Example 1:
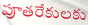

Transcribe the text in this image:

పూతరేకులకు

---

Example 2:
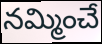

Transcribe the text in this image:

నమ్మించే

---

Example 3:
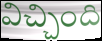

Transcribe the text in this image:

విచ్చింది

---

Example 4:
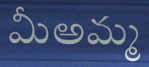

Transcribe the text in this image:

మీఅమ్మ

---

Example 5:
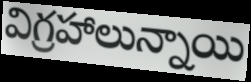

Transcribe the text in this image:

విగ్రహాలున్నాయి